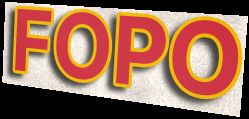
FOPO